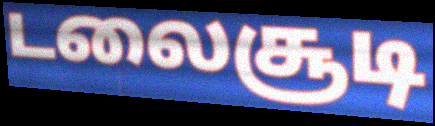
டலைசூடி